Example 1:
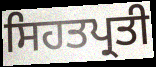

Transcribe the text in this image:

ਸਿਹਤਪ੍ਰਤੀ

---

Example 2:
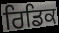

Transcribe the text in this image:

ਰਿਡਿਕ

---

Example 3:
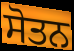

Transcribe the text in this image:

ਸੋਤਨ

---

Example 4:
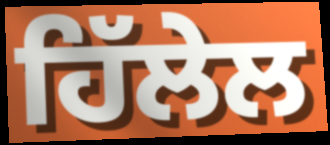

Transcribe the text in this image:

ਹਿੱਲੇਲ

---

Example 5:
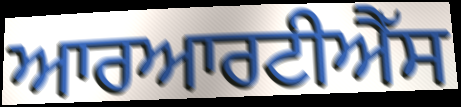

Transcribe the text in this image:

ਆਰਆਰਟੀਐੱਸ